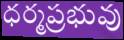
ధర్మప్రభువు